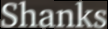
Shanks